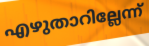
എഴുതാറില്ലേന്ന്